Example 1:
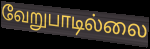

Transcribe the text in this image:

வேறுபாடில்லை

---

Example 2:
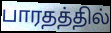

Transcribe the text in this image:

பாரதத்தில்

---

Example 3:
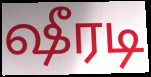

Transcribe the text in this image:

ஷீரடி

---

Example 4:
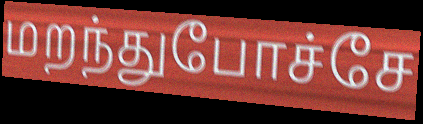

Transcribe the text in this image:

மறந்துபோச்சே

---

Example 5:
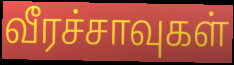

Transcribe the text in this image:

வீரச்சாவுகள்